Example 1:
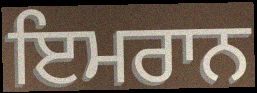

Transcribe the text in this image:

ਇਮਰਾਨ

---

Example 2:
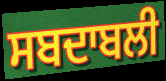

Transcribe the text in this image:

ਸਬਦਾਬਲੀ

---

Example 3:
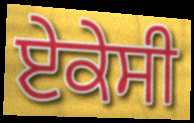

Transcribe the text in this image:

ਏਕੇਸੀ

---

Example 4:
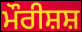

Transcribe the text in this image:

ਮੌਰੀਸ਼ਸ਼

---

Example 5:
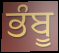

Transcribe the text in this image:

ਭੰਬੂ